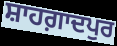
ਸ਼ਾਹਗ਼ਾਦਪੁਰ